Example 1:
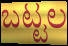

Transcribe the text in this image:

ಬಟ್ಟಲ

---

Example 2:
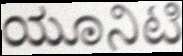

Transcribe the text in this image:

ಯೂನಿಟಿ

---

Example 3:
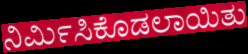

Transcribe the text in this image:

ನಿರ್ಮಿಸಿಕೊಡಲಾಯಿತು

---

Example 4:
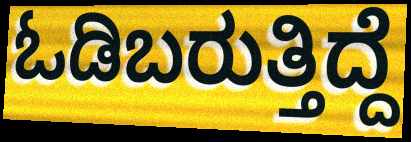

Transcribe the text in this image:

ಓಡಿಬರುತ್ತಿದ್ದೆ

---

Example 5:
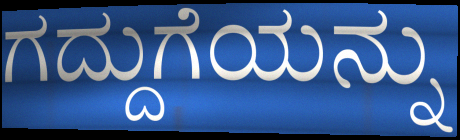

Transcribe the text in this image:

ಗದ್ದುಗೆಯನ್ನು